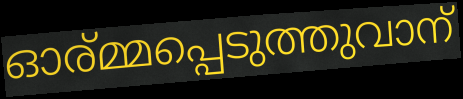
ഓര്മ്മപ്പെടുത്തുവാന്